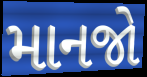
માનજો